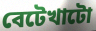
বেটেখাটো